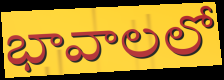
భావాలలో